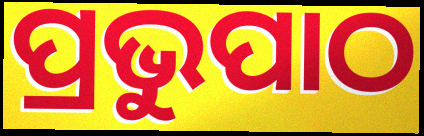
ପ୍ରଭୁପାଠ